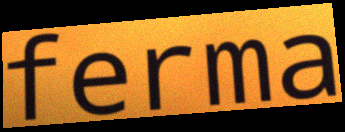
ferma